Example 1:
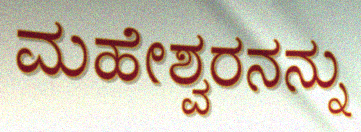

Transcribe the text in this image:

ಮಹೇಶ್ವರನನ್ನು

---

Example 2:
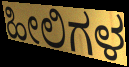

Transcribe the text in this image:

ಹೀಲಿಗಳ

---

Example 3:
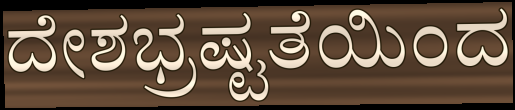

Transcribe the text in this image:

ದೇಶಭ್ರಷ್ಟತೆಯಿಂದ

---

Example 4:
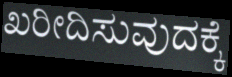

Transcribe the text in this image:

ಖರೀದಿಸುವುದಕ್ಕೆ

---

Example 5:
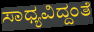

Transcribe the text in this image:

ಸಾಧ್ಯವಿದ್ದಂತೆ